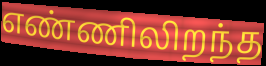
எண்ணிலிறந்த